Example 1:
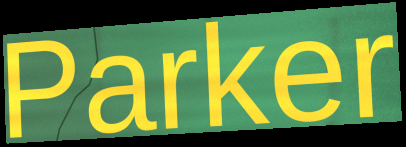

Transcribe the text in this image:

Parker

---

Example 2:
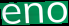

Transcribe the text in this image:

eno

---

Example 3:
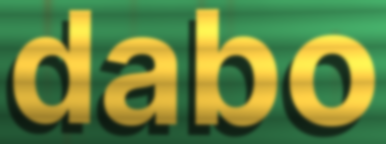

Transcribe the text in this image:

dabo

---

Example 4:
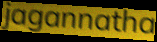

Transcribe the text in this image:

jagannatha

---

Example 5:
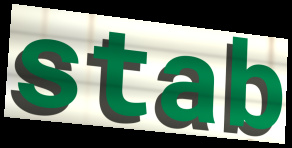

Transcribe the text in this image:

stab